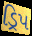
ડ્રિપ